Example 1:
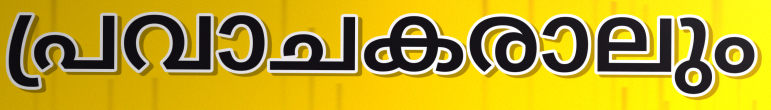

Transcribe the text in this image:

പ്രവാചകരാലും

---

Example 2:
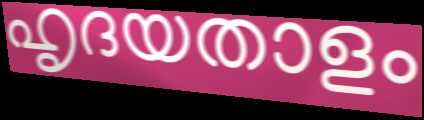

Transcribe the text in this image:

ഹൃദയതാളം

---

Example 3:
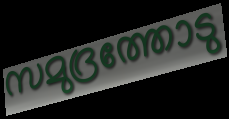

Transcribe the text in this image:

സമുദ്രത്തോടു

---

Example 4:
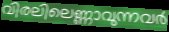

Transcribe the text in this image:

വിരലിലെണ്ണാവുന്നവർ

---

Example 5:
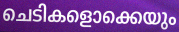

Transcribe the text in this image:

ചെടികളൊക്കെയും